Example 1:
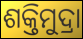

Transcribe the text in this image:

ଶକ୍ତିମୁଦ୍ରା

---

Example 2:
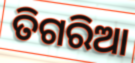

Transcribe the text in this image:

ତିଗରିଆ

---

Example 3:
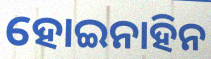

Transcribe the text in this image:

ହୋଇନାହିନ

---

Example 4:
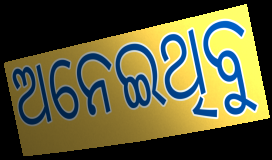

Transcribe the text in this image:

ଅନେଇଥିବୁ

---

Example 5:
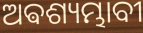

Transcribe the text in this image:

ଅଵଶ୍ୟମ୍ଭାବୀ